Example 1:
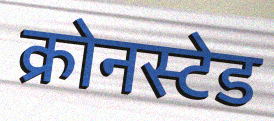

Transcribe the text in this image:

क्रोनस्टेड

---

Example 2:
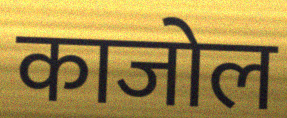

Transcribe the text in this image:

काजोल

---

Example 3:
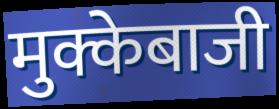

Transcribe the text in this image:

मुक्केबाजी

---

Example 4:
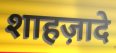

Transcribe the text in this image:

शाहज़ादे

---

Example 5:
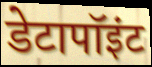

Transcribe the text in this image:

डेटापॉइंट